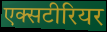
एक्सटीरियर